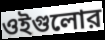
ওইগুলোর